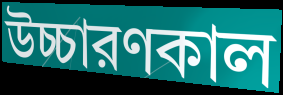
উচ্চারণকাল